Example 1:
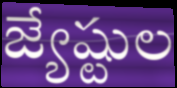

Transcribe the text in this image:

జ్యేష్టుల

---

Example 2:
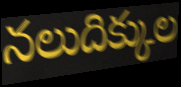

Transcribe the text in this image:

నలుదిక్కుల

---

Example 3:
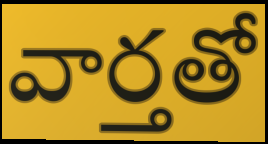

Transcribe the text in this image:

వార్తతో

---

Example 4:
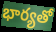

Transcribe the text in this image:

భార్యతో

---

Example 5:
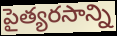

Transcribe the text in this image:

పైత్యరసాన్ని